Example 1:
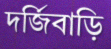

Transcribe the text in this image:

দর্জিবাড়ি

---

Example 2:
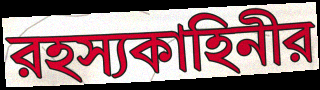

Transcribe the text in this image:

রহস্যকাহিনীর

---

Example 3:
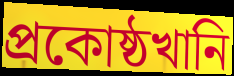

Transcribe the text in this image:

প্রকোষ্ঠখানি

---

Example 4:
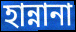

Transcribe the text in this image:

হান্নানা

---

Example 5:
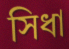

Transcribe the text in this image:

সিধা